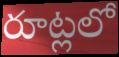
రూట్లలో